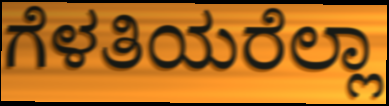
ಗೆಳತಿಯರೆಲ್ಲಾ